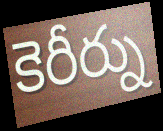
కెరీర్ను